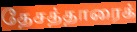
தேசத்தாரைக்